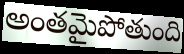
అంతమైపోతుంది